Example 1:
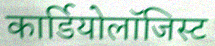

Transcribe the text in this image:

कार्डियोलॉजिस्ट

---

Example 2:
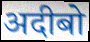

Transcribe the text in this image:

अदीबो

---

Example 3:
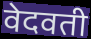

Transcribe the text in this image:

वेदवती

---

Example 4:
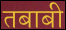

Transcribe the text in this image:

तबाबी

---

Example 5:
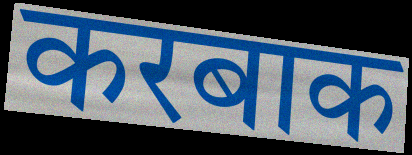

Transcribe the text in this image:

करबाक